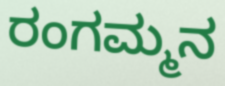
ರಂಗಮ್ಮನ